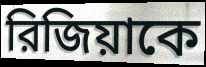
রিজিয়াকে